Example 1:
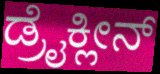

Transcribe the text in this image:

ಡ್ರೈಕ್ಲೀನ್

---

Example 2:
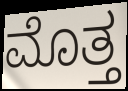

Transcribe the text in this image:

ಮೊತ್ತ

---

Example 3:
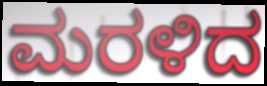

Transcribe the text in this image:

ಮರಳಿದ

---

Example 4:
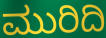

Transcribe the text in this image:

ಮುರಿದಿ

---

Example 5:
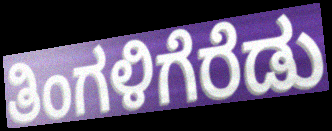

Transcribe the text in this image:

ತಿಂಗಳಿಗೆರೆಡು